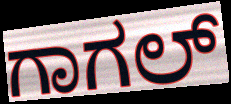
ಗಾಗಲ್